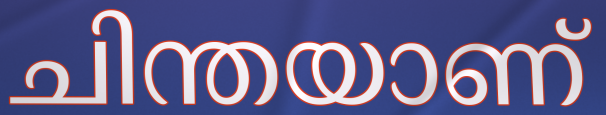
ചിന്തയാണ്